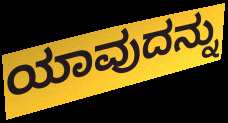
ಯಾವುದನ್ನು